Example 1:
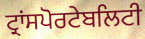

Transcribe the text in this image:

ਟ੍ਰਾਂਸਪੋਰਟੇਬਲਿਟੀ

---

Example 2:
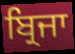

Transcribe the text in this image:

ਬ੍ਰਿਜਾ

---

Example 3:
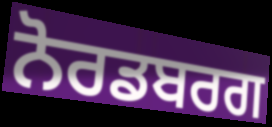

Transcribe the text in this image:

ਨੋਰਡਬਰਗ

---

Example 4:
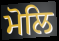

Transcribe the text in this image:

ਮੋਲਿ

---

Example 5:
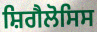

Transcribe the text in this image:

ਸ਼ਿਗੈਲੋਸਿਸ